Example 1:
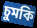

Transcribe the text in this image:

চুমকি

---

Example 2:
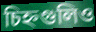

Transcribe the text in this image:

চিহ্নগুলিও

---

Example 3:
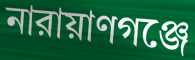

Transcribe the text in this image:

নারায়াণগঞ্জে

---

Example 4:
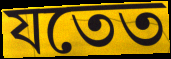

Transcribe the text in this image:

যতেত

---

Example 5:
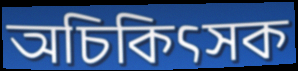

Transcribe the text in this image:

অচিকিৎসক